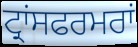
ਟ੍ਰਾਂਸਫਰਮਰਾਂ